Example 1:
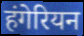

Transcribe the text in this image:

हंगेरियन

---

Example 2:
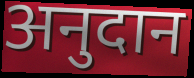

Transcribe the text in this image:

अनुदान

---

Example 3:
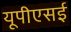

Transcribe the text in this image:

यूपीएसई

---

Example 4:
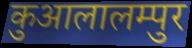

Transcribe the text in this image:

कुआलालम्पुर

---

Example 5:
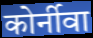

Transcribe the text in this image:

कोर्नीवा